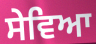
ਸੇਵਿਆ